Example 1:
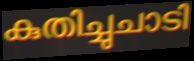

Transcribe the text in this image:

കുതിച്ചുചാടി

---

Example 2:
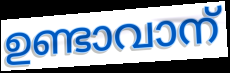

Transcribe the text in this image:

ഉണ്ടാവാന്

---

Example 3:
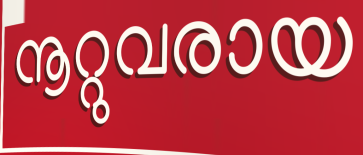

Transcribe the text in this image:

നൂറ്റുവരായ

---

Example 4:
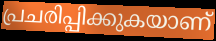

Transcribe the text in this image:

പ്രചരിപ്പിക്കുകയാണ്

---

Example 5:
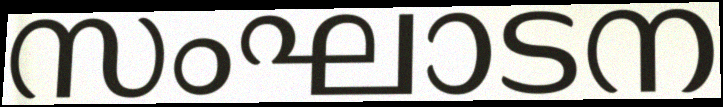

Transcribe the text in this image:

സംഘാടന